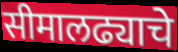
सीमालढ्याचे